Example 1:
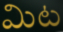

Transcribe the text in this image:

మిట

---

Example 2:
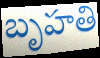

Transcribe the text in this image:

బృహతి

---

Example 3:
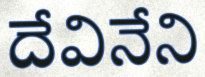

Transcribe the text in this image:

దేవినేని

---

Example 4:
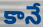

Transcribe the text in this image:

కానే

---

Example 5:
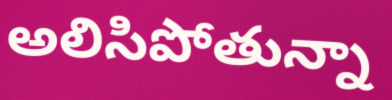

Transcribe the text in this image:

అలిసిపోతున్నా